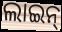
ଲାଇନ୍